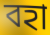
বহা